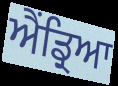
ਐਂਡ੍ਰਿਆ